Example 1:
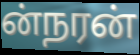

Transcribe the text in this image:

ன்நரன்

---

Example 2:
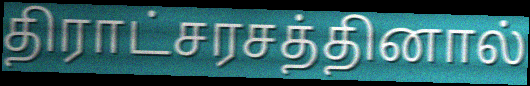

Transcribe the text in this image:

திராட்சரசத்தினால்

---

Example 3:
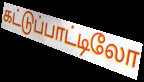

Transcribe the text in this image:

கட்டுப்பாட்டிலோ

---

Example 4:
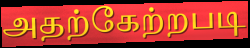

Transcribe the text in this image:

அதற்கேற்றபடி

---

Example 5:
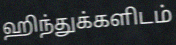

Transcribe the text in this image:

ஹிந்துக்களிடம்